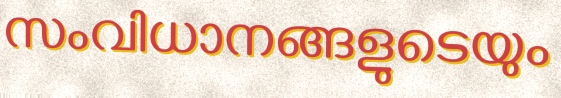
സംവിധാനങ്ങളുടെയും